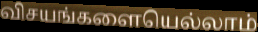
விசயங்களையெல்லாம்